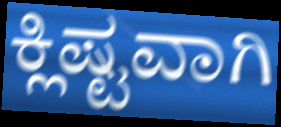
ಕ್ಲಿಷ್ಟವಾಗಿ